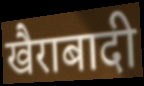
खैराबादी